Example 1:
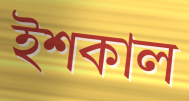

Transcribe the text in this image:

ইশকাল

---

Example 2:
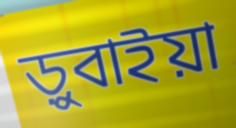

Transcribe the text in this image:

ড়ুবাইয়া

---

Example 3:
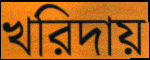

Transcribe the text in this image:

খরিদায়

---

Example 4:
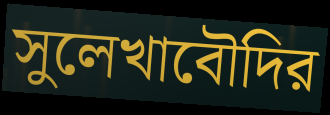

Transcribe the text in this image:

সুলেখাবৌদির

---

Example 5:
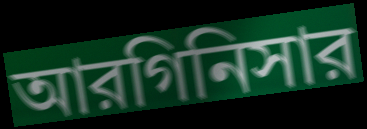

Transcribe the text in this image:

আরগিনিসার